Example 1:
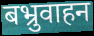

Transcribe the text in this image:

बभ्रुवाहन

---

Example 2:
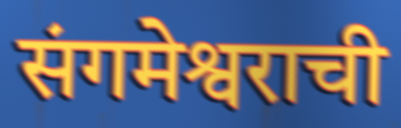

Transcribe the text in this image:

संगमेश्वराची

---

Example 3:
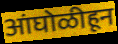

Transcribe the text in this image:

आंघोळीहून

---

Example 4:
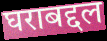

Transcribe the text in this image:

घराबद्दल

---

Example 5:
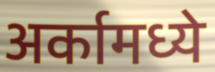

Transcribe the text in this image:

अर्कामध्ये